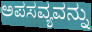
ಅಪಸವ್ಯವನ್ನು